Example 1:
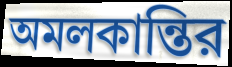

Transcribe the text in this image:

অমলকান্তির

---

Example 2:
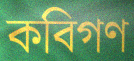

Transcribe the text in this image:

কবিগণ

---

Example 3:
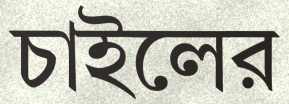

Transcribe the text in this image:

চাইলের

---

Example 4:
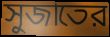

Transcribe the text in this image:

সুজাতের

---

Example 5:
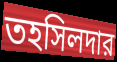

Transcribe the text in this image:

তহসিলদার